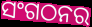
ସଂଗଠନର